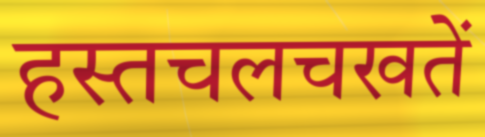
हस्तचलचखतें